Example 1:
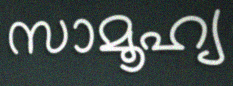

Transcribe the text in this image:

സാമൂഹ്യ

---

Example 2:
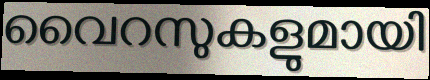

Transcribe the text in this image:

വൈറസുകളുമായി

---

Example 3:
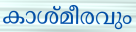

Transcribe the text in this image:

കാശ്മീരവും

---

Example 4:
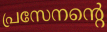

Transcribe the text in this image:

പ്രസേനന്റെ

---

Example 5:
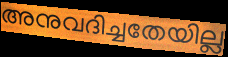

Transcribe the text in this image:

അനുവദിച്ചതേയില്ല